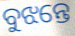
ବୁଝନ୍ତେ